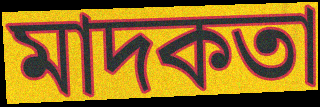
মাদকতা